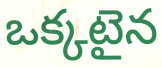
ఒక్కటైన